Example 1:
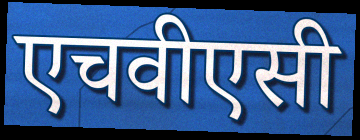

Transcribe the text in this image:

एचवीएसी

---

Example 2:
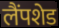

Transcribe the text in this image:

लैंपशेड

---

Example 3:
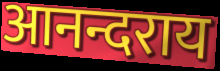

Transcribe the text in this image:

आनन्दराय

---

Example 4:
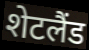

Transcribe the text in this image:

शेटलैंड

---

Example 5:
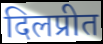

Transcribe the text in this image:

दिलप्रीत